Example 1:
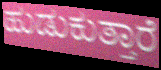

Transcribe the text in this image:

ಹುಡುಕುತ್ತಾರೆ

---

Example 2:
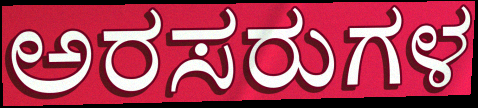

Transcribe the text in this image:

ಅರಸರುಗಳ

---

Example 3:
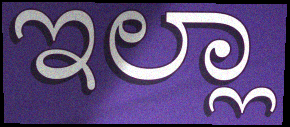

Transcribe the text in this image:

ಇಲ್ಲಾ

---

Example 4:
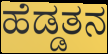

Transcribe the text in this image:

ಹೆಡ್ಡತನ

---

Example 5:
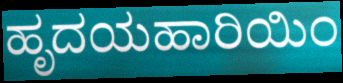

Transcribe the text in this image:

ಹೃದಯಹಾರಿಯಿಂ